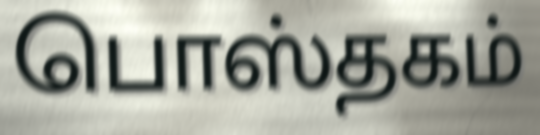
பொஸ்தகம்